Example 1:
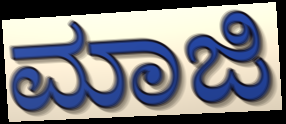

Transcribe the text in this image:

ಮಾಜಿ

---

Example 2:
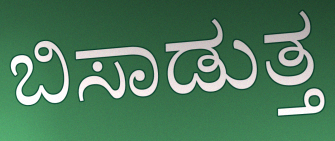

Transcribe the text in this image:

ಬಿಸಾಡುತ್ತ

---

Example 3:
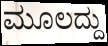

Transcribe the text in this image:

ಮೂಲದ್ದು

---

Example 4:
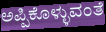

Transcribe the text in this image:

ಅಪ್ಪಿಕೊಳ್ಳುವಂತೆ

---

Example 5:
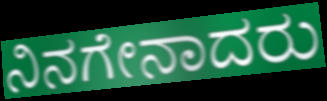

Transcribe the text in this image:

ನಿನಗೇನಾದರು